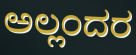
ಅಲ್ಲಂದರ